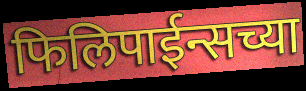
फिलिपाईन्सच्या